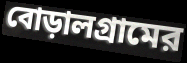
বোড়ালগ্রামের